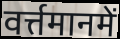
वर्त्तमानमें